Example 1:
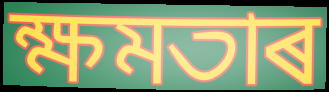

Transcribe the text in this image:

ক্ষমতাৰ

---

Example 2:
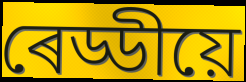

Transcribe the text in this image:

ৰেড্ডীয়ে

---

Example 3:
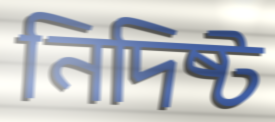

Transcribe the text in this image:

নিদিষ্ট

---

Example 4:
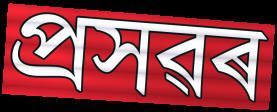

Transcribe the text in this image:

প্ৰসৱৰ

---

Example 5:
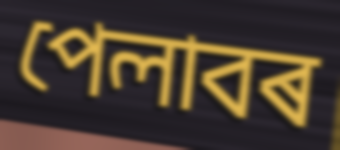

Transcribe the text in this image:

পেলাবৰ